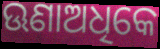
ଊଣାଅଧିକେ